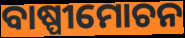
ବାଷ୍ପୀମୋଚନ